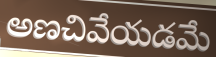
అణచివేయడమే